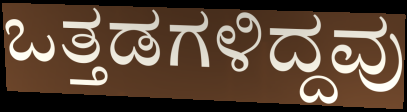
ಒತ್ತಡಗಳಿದ್ದವು